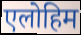
एलोहिम